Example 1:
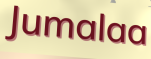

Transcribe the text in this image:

Jumalaa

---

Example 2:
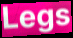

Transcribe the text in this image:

Legs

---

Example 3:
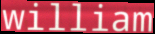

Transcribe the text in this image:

william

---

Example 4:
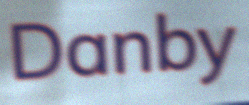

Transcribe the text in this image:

Danby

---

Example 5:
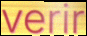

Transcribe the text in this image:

verir